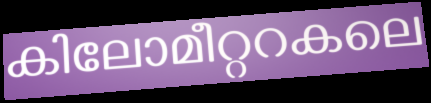
കിലോമീറ്ററകലെ